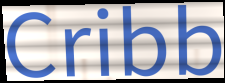
Cribb